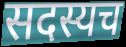
सदस्यच